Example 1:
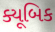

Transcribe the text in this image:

ક્યૂબિક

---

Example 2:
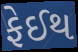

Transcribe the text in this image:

ફેઈથ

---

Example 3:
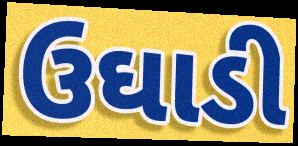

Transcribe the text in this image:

ઉઘાડી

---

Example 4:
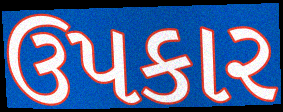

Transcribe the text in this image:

ઉપકાર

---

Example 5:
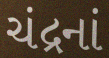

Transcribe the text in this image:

ચંદ્રનાં